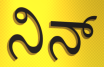
ನಿನ್